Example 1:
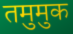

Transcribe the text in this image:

तमुमुक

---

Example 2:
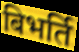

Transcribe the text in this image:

बिभर्ति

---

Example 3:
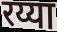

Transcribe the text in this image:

रय्या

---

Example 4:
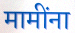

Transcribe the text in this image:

मामींना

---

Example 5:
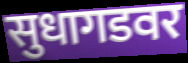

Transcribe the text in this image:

सुधागडवर